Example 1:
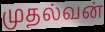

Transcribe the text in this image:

முதல்வன்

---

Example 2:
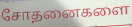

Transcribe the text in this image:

சோதனைகளை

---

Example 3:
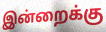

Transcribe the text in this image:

இன்றைக்கு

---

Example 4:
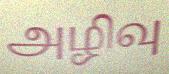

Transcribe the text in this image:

அழிவு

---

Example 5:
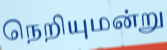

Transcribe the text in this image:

நெறியுமன்று